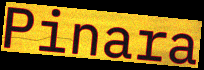
Pinara